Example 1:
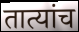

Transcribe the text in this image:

तात्यांच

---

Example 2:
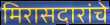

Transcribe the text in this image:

मिरासदारांचे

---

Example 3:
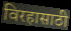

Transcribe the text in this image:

विरहासाठी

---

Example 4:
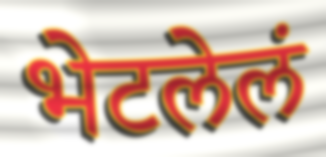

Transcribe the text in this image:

भेटलेलं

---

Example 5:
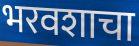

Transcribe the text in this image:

भरवशाचा